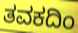
ತವಕದಿಂ